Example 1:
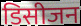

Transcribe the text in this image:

डिसीजन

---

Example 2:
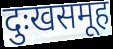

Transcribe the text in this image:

दुःखसमूह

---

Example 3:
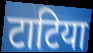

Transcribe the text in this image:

टाटिया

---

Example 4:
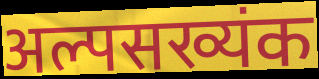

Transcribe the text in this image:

अल्पसख्यंक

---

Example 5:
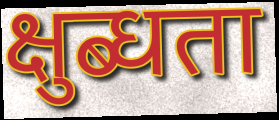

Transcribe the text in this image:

क्षुब्धता